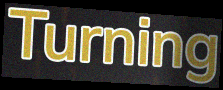
Turning